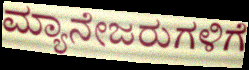
ಮ್ಯಾನೇಜರುಗಳಿಗೆ